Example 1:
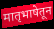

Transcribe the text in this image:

मातृभाषेतून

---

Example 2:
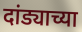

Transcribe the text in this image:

दांड्याच्या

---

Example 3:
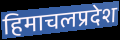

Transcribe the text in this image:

हिमाचलप्रदेश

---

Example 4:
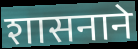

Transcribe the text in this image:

शासनाने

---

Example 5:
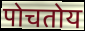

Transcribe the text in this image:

पोचतोय